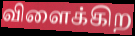
விளைக்கிற